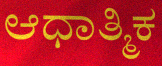
ಆಧಾತ್ಮಿಕ